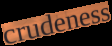
crudeness